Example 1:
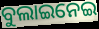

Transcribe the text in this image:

ବୁଲାଇନେଇ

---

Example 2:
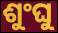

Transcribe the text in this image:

ଶୁଂଘୁ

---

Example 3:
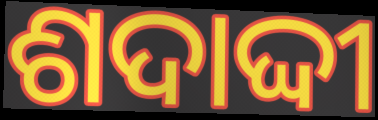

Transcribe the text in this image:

ଶଦାଦ୍ଦୀ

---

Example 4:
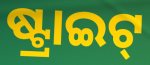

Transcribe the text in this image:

ଷ୍ଟ୍ରାଇଟ୍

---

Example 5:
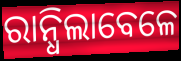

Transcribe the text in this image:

ରାନ୍ଧିଲାବେଳେ